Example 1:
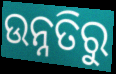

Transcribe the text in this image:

ଉନ୍ନତିରୁ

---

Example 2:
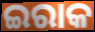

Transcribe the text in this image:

ଇରାକ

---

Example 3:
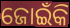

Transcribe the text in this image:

ଜୋଇଁକି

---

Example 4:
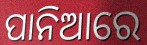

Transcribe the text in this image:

ପାନିଆରେ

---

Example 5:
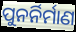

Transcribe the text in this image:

ପୁନର୍ନିର୍ମାଣ